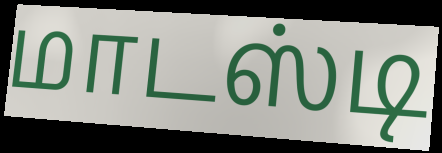
மாடஸ்டி